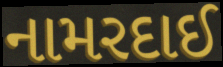
નામરદાઈ